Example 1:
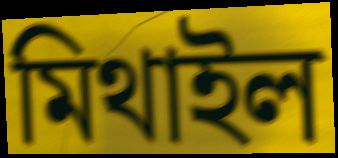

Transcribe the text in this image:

মিথাইল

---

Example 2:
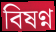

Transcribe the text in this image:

বিষণ্ন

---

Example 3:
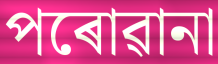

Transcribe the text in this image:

পৰোৱানা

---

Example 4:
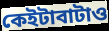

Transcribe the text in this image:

কেইটাবাটাও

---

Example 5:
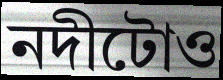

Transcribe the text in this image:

নদীটোও